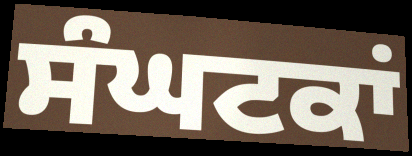
ਸੰਘਟਕਾਂ